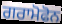
ਗਰਾਮੋਫੋਨ